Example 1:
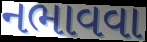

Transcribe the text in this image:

નભાવવા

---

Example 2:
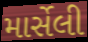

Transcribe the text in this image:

માર્સેલી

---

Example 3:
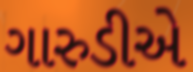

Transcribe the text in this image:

ગારુડીએ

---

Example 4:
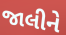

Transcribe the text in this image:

જાલીને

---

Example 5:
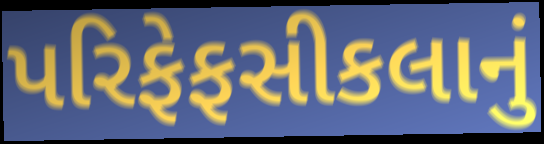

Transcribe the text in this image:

પરિફેફસીકલાનું